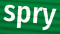
spry